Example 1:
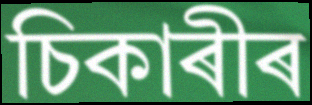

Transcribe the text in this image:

চিকাৰীৰ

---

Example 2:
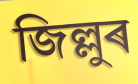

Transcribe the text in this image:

জিল্লুৰ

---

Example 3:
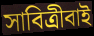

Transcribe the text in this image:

সাবিত্ৰীবাই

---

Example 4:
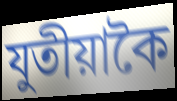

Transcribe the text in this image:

যুতীয়াকৈ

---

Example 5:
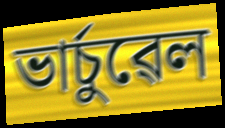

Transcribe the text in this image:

ভাৰ্চুৱেল